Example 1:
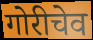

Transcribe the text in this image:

गोरीचेव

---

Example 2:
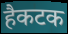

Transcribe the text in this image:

हैकटक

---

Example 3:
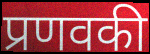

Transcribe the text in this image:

प्रणवकी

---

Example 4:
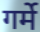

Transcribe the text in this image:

गर्मे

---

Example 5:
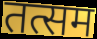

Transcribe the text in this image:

तत्सम